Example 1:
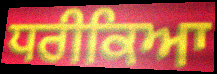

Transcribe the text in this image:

ਧਰੀਕਿਆ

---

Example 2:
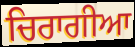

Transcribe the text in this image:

ਚਿਰਾਗੀਆ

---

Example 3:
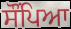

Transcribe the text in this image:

ਸੌਂਪਿਆ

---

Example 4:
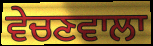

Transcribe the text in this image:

ਵੇਚਣਵਾਲਾ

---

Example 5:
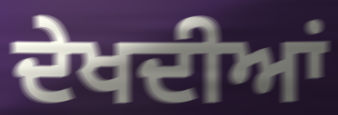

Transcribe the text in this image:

ਦੇਖਦੀਆਂ